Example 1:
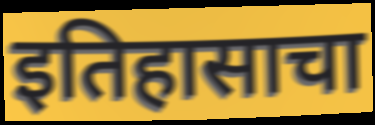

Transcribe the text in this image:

इतिहासाचा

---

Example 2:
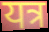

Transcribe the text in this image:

यत्र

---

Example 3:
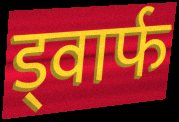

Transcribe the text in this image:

ड्वार्फ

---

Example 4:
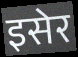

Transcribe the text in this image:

इसेर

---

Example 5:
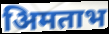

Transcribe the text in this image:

अिमताभ